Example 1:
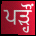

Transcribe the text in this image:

ਪੜ੍ਹੌਂ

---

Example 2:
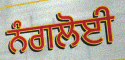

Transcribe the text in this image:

ਨੰਗਲੋਈ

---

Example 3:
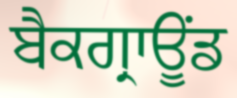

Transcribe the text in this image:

ਬੈਕਗ੍ਰਾਊਂਡ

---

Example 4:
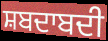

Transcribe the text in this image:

ਸ਼ਬਦਾਬਦੀ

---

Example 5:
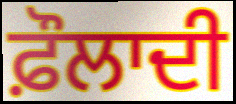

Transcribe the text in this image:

ਫ਼ੌਲਾਦੀ